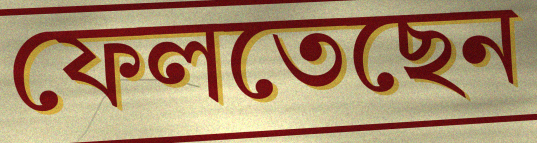
ফেলতেছেন